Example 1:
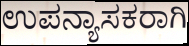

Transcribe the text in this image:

ಉಪನ್ಯಾಸಕರಾಗಿ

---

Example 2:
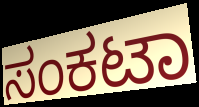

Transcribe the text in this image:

ಸಂಕಟಾ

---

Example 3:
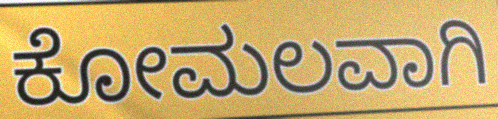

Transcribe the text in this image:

ಕೋಮಲವಾಗಿ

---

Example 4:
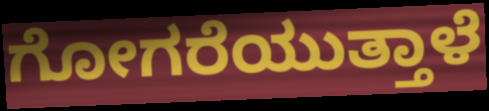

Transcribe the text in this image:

ಗೋಗರೆಯುತ್ತಾಳೆ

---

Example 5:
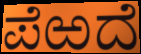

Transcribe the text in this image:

ಪೆಱದೆ